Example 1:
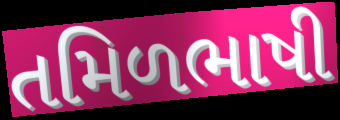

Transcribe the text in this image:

તમિળભાષી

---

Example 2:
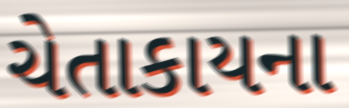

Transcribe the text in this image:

ચેતાકાયના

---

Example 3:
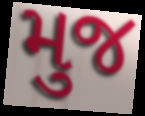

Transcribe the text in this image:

મુજ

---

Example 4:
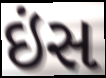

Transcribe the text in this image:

ઇંસ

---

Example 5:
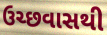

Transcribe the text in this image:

ઉચ્છવાસથી